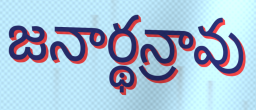
జనార్థన్రావు